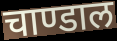
चाण्डाल